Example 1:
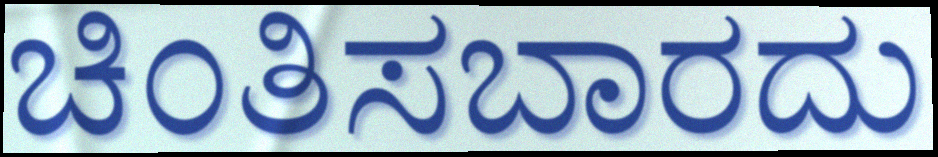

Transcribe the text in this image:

ಚಿಂತಿಸಬಾರದು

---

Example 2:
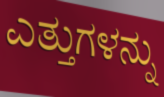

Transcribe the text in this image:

ಎತ್ತುಗಳನ್ನು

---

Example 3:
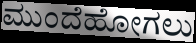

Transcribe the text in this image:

ಮುಂದೆಹೋಗಲು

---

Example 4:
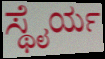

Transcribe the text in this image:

ಸ್ಥೈರ್ಯ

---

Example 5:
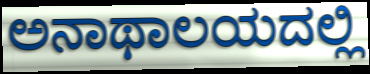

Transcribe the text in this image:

ಅನಾಥಾಲಯದಲ್ಲಿ